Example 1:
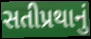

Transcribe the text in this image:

સતીપ્રથાનું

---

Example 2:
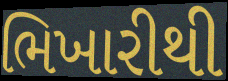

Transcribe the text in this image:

ભિખારીથી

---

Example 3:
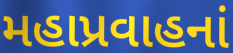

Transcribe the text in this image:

મહાપ્રવાહનાં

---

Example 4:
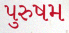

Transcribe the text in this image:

પુરુષમ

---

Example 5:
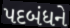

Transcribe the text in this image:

પદબંધને